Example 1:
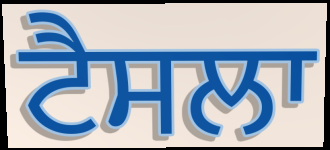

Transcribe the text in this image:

ਟੈਸਲਾ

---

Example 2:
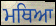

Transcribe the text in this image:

ਮਥਿਆ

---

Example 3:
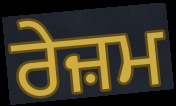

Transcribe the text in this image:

ਰੇਜ਼ਮ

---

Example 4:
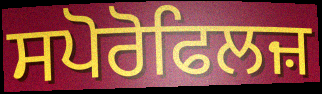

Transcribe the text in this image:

ਸਪੋਰੋਫਿਲਜ਼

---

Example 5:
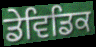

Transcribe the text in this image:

ਡੇਵਿਡਿਕ